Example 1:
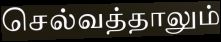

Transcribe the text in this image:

செல்வத்தாலும்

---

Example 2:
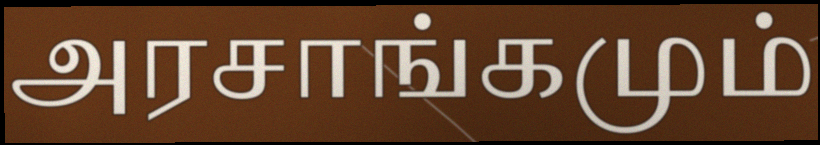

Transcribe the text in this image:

அரசாங்கமும்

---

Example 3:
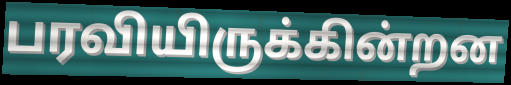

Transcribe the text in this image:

பரவியிருக்கின்றன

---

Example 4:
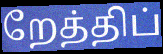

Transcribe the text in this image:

றேத்திப்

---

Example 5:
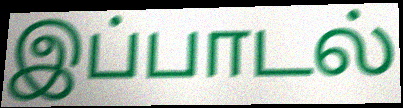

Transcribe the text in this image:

இப்பாடல்